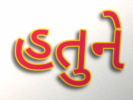
હતુને